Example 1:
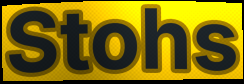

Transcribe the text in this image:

Stohs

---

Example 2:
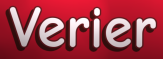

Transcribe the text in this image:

Verier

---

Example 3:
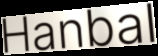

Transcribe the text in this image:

Hanbal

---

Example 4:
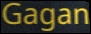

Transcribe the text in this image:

Gagan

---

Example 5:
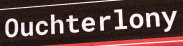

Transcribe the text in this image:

Ouchterlony